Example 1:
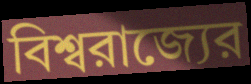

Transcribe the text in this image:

বিশ্বরাজ্যের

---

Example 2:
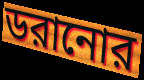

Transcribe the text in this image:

ডরানোর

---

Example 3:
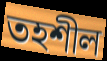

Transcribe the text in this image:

তহশীল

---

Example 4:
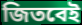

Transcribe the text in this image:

জিতবেই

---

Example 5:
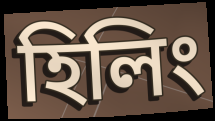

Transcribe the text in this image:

হিলিং